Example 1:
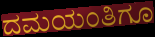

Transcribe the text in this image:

ದಮಯಂತಿಗೂ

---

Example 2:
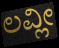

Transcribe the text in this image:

ಲವ್ಲೀ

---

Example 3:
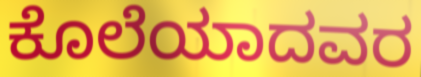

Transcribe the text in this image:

ಕೊಲೆಯಾದವರ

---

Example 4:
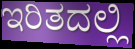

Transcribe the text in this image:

ಇರಿತದಲ್ಲಿ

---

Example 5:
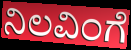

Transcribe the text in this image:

ನಿಲವಿಂಗೆ